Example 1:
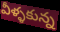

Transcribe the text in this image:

వీళ్ళకున్న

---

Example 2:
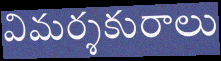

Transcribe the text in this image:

విమర్శకురాలు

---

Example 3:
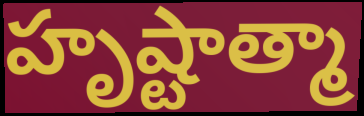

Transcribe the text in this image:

హృష్టాత్మా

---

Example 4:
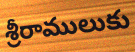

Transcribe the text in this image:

శ్రీరాములుకు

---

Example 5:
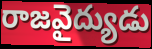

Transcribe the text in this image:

రాజవైద్యుడు